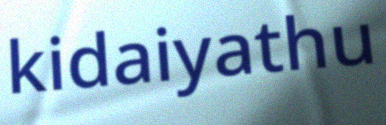
kidaiyathu